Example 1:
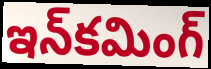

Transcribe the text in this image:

ఇన్‌కమింగ్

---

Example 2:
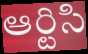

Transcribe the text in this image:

ఆర్టిసి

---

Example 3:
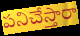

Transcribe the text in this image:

పనిచేస్తారా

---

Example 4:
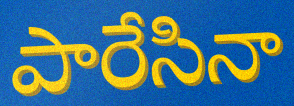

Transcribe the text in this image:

పారేసినా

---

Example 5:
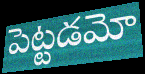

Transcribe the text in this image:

పెట్టడమో